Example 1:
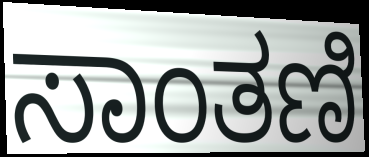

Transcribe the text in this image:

ಸಾಂತಣಿ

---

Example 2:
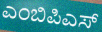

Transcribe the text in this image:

ಎಂಬಿಪಿಎಸ್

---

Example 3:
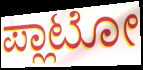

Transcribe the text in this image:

ಪ್ಲಾಟೋ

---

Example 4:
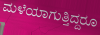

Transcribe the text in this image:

ಮಳೆಯಾಗುತ್ತಿದ್ದರೂ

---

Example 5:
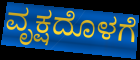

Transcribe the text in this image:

ವೃಕ್ಷದೊಳಗೆ